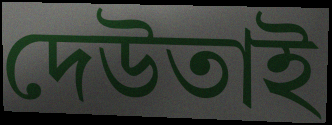
দেউতাই